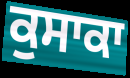
ਕੁਸਾਕਾ